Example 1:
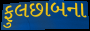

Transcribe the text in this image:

ફુલછાબના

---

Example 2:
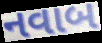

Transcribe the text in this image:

નવાબ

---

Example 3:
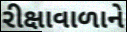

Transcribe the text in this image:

રીક્ષાવાળાને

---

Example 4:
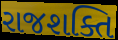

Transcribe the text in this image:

રાજશક્તિ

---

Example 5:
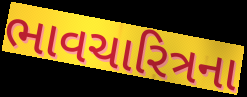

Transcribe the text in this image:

ભાવચારિત્રના